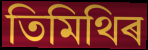
তিমিথিৰ